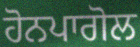
ਹੋਨਪਾਗੋਲ